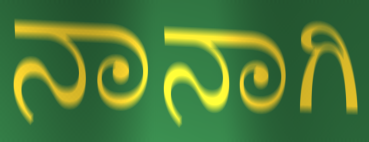
ನಾನಾಗಿ